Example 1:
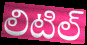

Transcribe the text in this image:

లిటిల్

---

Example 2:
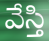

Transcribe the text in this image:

వేస్తి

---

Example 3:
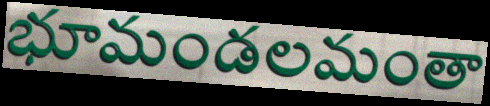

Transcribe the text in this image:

భూమండలమంతా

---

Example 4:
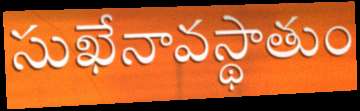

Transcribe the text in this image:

సుఖేనావస్థాతుం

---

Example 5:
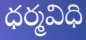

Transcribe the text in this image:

ధర్మవిధి